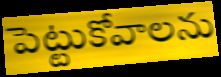
పెట్టుకోవాలను